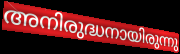
അനിരുദ്ധനായിരുന്നു